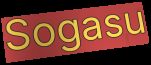
Sogasu